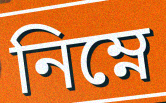
নিম্নে